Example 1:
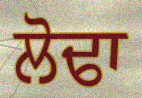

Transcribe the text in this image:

ਲੋਢਾ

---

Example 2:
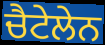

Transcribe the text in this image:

ਚੈਟੇਲੇਨ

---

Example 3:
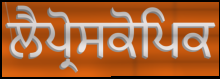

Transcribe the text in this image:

ਲੈਪ੍ਰੋਸਕੋਪਿਕ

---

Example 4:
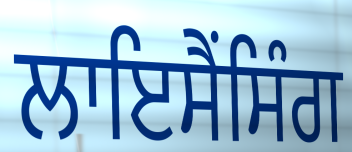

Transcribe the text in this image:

ਲਾਇਸੈਂਸਿੰਗ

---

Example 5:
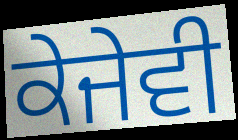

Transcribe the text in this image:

ਕੇਜੇਵੀ